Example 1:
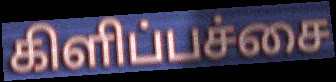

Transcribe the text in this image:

கிளிப்பச்சை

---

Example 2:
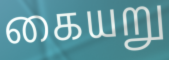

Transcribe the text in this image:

கையறு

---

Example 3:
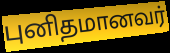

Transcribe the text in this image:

புனிதமானவர்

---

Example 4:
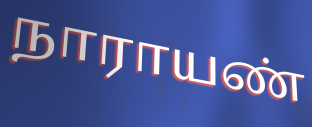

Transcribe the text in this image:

நாராயண்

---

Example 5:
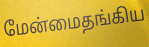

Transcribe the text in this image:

மேன்மைதங்கிய